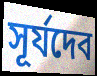
সূর্যদেব